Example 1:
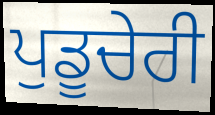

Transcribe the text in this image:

ਪੁਡੂਚੇਰੀ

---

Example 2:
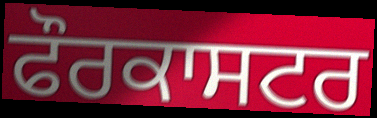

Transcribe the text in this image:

ਫੌਰਕਾਸਟਰ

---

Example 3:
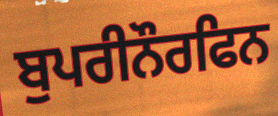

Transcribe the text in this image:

ਬੁਪਰੀਨੌਰਫਿਨ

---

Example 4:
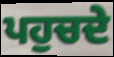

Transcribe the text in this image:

ਪਹੁਚਦੇ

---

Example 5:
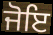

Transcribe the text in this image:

ਜੋਇ